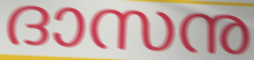
ദാസനു